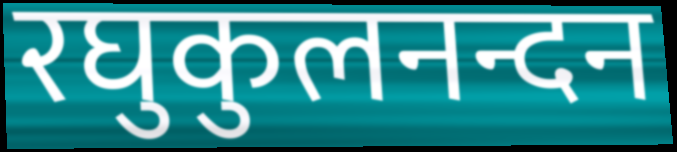
रघुकुलनन्दन